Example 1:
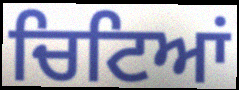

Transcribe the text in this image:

ਚਿਟਿਆਂ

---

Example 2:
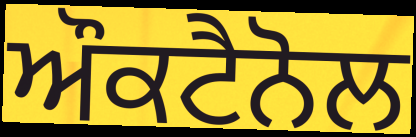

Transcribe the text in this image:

ਔਕਟੈਨੋਲ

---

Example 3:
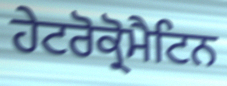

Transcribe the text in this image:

ਹੇਟਰੋਕ੍ਰੋਮੈਟਿਨ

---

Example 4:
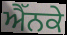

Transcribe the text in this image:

ਐੱਨਕੇ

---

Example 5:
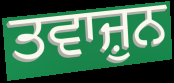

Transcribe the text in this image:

ਤਵਾਜ਼ੁਨ